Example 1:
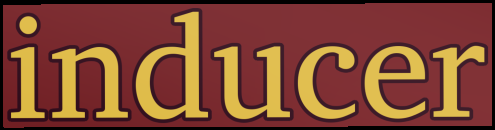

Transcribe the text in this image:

inducer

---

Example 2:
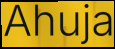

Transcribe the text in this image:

Ahuja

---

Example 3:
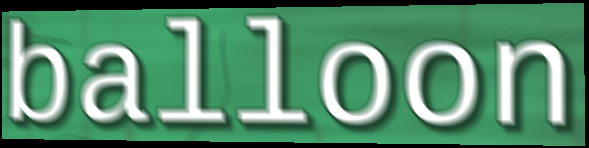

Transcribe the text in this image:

balloon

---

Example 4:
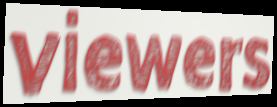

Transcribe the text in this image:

viewers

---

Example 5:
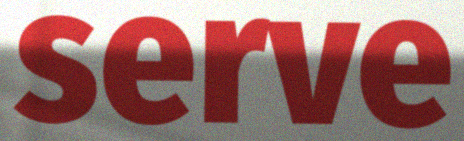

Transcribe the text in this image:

serve